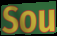
Sou